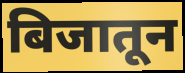
बिजातून